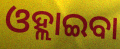
ଓହ୍ଲାଇବା